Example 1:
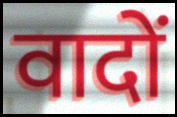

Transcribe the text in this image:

वादों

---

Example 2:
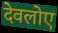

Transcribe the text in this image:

देवलोए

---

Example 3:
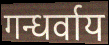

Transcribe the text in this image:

गन्धर्वाय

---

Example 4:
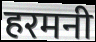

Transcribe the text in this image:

हरमनी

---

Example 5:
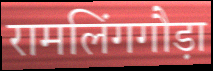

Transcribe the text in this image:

रामलिंगगौड़ा